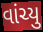
વાંચ્યુ